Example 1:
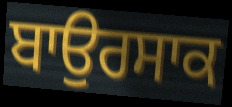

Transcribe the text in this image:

ਬਾਉਰਸਾਕ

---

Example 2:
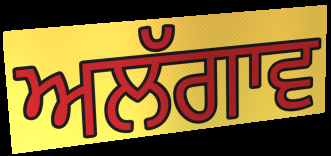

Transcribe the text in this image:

ਅਲੱਗਾਵ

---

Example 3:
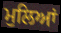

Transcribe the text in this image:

ਮੁਲਿਆਂ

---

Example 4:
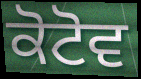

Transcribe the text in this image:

ਕੋਟੋਵ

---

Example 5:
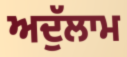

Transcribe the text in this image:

ਅਦੁੱਲਾਮ